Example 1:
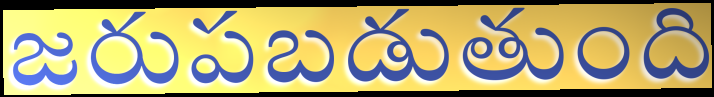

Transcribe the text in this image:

జరుపబడుతుంది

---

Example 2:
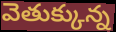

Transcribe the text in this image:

వెతుక్కున్న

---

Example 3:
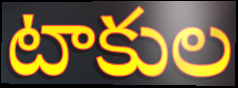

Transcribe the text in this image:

టాకుల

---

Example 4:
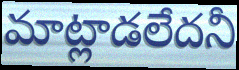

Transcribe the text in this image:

మాట్లాడలేదనీ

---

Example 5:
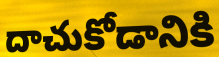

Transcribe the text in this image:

దాచుకోడానికి